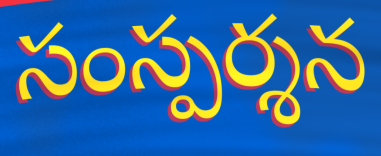
సంస్పర్శన